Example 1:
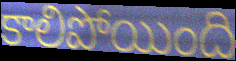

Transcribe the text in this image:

కాలిపోయింది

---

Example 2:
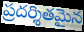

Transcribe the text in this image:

ప్రదర్శితమైన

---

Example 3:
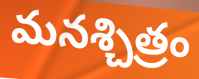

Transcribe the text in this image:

మనశ్చిత్రం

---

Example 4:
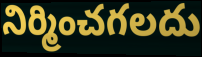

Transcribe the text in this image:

నిర్మించగలదు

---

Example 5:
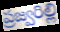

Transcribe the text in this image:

ప్రజ్వరిల్లి